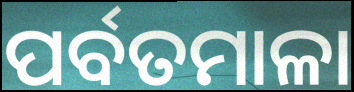
ପର୍ବତମାଳା